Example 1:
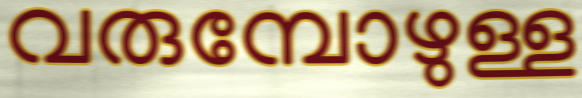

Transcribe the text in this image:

വരുമ്പോഴുള്ള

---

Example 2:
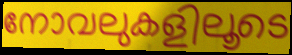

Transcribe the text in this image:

നോവലുകളിലൂടെ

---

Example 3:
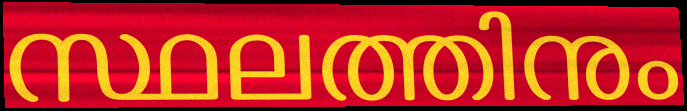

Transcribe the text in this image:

സ്ഥലത്തിനും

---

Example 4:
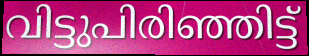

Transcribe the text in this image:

വിട്ടുപിരിഞ്ഞിട്ട്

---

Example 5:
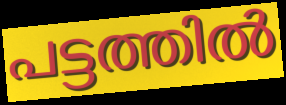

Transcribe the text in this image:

പട്ടത്തിൽ